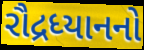
રૌદ્રધ્યાનનો